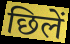
छिलें